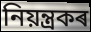
নিয়ন্ত্ৰকৰ